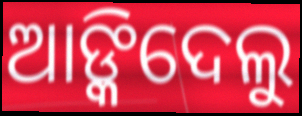
ଆଙ୍କିଦେଲୁ